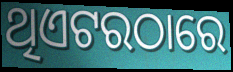
ଥିଏଟରଠାରେ